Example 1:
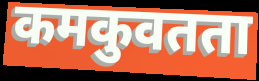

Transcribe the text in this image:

कमकुवतता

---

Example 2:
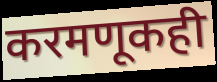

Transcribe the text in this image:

करमणूकही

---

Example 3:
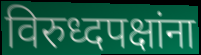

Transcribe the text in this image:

विरुध्दपक्षांना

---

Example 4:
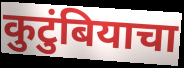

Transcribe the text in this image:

कुटुंबियाचा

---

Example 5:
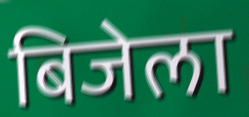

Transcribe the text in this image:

बिजेला